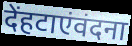
देंहटाएंवंदना